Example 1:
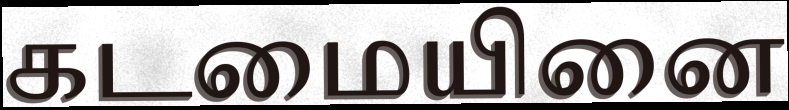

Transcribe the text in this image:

கடமையினை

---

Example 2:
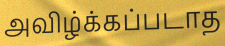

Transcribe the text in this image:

அவிழ்க்கப்படாத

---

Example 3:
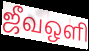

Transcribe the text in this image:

ஜீவஒளி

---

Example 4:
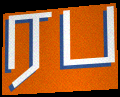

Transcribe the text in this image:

ரப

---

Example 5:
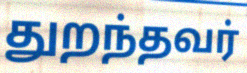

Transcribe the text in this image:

துறந்தவர்